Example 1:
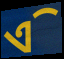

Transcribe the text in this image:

ଏି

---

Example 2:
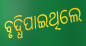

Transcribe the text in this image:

ବୃଦ୍ଧିପାଇଥିଲେ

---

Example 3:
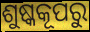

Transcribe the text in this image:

ଶୁଷ୍କକୂପରୁ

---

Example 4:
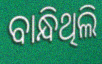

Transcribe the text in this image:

ବାନ୍ଧିଥିଲି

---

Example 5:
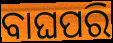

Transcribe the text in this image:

ବାଘପରି